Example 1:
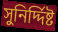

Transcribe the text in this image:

সুনির্দ্দিষ্ট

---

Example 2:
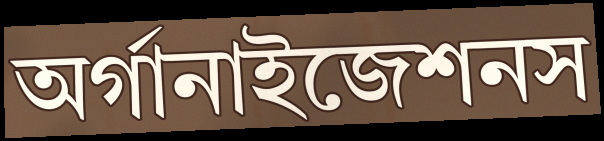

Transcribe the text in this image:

অর্গানাইজেশনস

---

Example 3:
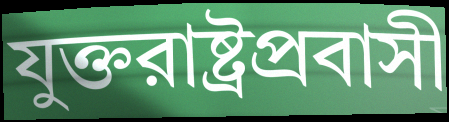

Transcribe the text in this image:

যুক্তরাষ্ট্রপ্রবাসী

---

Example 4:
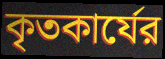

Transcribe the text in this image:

কৃতকার্যের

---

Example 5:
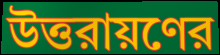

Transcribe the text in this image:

উত্তরায়ণের